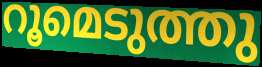
റൂമെടുത്തു